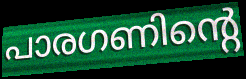
പാരഗണിന്റെ